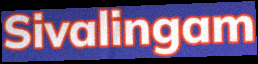
Sivalingam